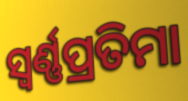
ସ୍ୱର୍ଣ୍ଣପ୍ରତିମା